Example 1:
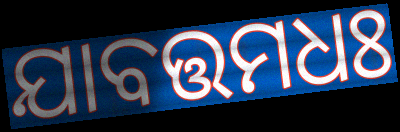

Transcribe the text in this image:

ଯାବତ୍ତମଧଃ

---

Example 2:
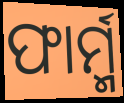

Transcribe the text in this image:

ଫାର୍ମ୍ମ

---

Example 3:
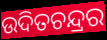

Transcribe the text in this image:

ଉଦିତଚନ୍ଦ୍ରର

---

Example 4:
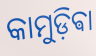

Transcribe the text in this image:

କାମୁଡ଼ିଵା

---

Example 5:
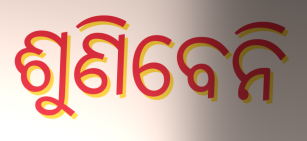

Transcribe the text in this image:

ଶୁଣିବେନି